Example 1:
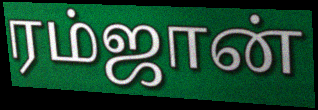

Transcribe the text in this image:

ரம்ஜான்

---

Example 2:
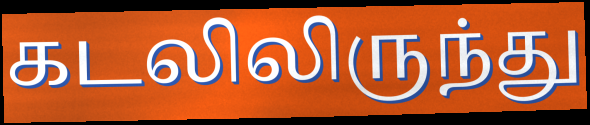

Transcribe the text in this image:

கடலிலிருந்து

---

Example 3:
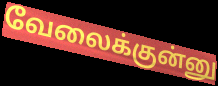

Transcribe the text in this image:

வேலைக்குன்னு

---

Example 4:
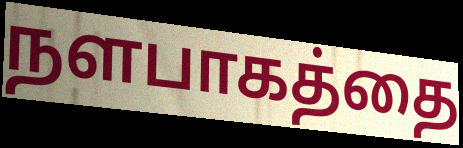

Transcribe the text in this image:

நளபாகத்தை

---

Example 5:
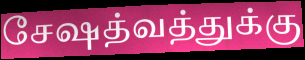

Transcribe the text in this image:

சேஷத்வத்துக்கு